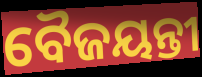
ବୈଜୟନ୍ତୀ